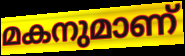
മകനുമാണ്